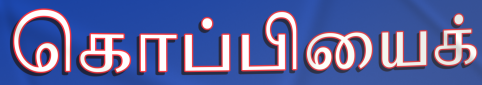
கொப்பியைக்